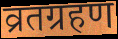
व्रतग्रहण